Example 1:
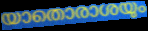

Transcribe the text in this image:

യാതൊരാശയും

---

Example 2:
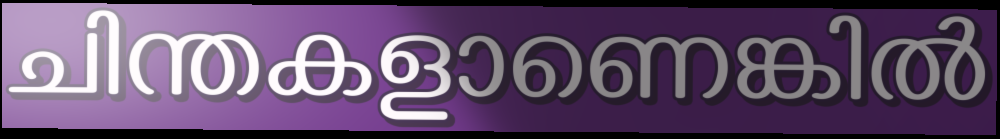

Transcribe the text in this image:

ചിന്തകളാണെങ്കിൽ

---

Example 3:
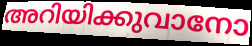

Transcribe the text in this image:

അറിയിക്കുവാനോ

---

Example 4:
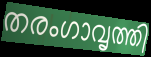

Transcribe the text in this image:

തരംഗാവൃത്തി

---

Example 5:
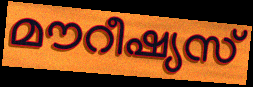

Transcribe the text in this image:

മൗറീഷ്യസ്